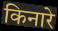
किनारे